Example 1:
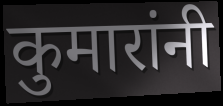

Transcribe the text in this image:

कुमारांनी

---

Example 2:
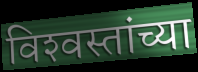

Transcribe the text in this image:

विश्वस्तांच्या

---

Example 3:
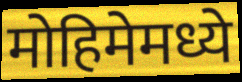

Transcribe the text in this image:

मोहिमेमध्ये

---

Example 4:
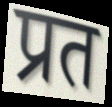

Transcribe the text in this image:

प्रत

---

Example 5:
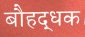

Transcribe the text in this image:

बौहद्धक